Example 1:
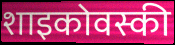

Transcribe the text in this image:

शाइकोवस्की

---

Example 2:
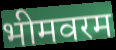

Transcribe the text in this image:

भीमवरम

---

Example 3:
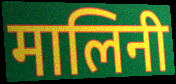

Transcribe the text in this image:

मालिनी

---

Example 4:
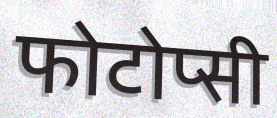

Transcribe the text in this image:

फोटोप्सी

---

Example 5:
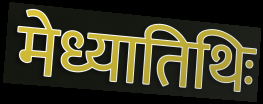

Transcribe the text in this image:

मेध्यातिथिः